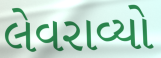
લેવરાવ્યો